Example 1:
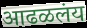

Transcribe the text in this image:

आढळलंय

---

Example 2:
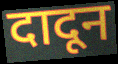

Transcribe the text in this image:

दादून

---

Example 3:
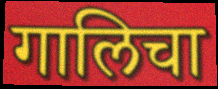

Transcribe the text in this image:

गालिचा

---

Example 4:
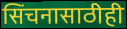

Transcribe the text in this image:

सिंचनासाठीही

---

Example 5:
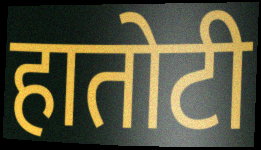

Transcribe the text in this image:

हातोटी